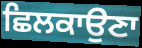
ਛਿਲਕਾਉਣਾ